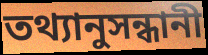
তথ্যানুসন্ধানী